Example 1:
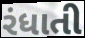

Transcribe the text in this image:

રંધાતી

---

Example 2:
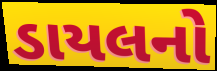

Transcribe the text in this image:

ડાયલનો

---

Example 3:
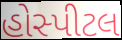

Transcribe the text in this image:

હોસ્પીટલ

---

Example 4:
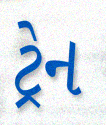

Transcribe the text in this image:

ટ્રેન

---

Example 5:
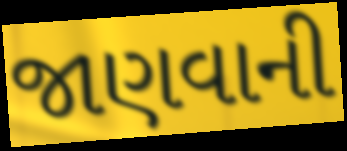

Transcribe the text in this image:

જાણવાની